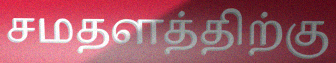
சமதளத்திற்கு